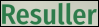
Resuller